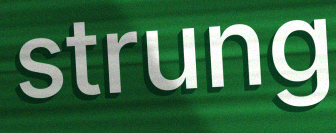
strung